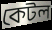
কেটল